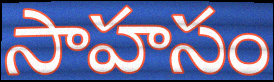
సాహసం